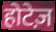
होटेज़